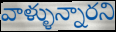
వాళ్ళున్నారని